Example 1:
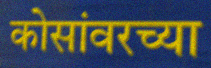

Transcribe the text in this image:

कोसांवरच्या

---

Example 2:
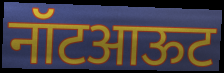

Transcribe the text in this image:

नॉटआऊट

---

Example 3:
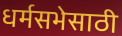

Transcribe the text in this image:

धर्मसभेसाठी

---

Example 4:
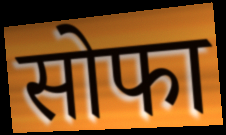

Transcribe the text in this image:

सोफा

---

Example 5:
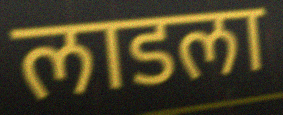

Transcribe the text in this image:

लाडला